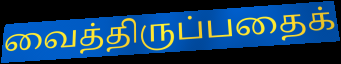
வைத்திருப்பதைக்